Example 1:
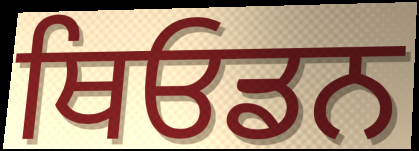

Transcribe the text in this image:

ਥਿਓਡਨ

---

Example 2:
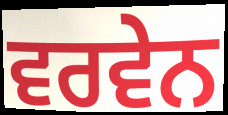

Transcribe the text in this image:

ਵਰਵੇਨ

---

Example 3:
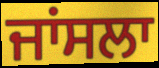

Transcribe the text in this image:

ਜਾਂਸਲਾ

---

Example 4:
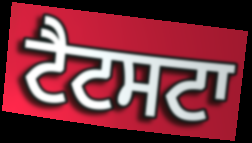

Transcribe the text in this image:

ਟੈਟਸਟਾ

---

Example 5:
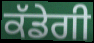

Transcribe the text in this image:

ਕੱਡੇਗੀ